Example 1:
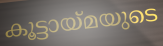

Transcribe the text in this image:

കൂട്ടായ്മയുടെ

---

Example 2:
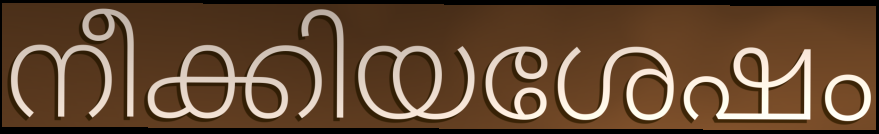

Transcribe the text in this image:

നീക്കിയശേഷം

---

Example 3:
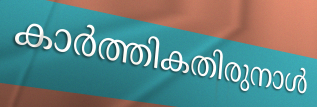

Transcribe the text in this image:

കാർത്തികതിരുനാൾ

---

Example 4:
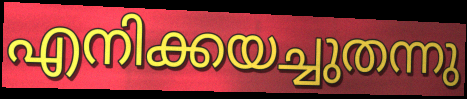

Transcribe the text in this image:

എനിക്കയച്ചുതന്നു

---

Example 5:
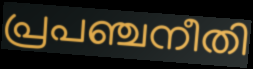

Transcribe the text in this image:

പ്രപഞ്ചനീതി